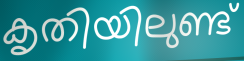
കൃതിയിലുണ്ട്